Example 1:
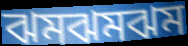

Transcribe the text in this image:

ঝমঝমঝম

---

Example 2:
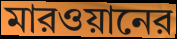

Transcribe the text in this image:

মারওয়ানের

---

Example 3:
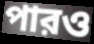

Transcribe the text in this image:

পারও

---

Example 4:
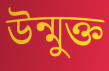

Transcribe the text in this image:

উন্মুক্ত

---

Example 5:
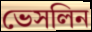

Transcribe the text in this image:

ভেসলিন